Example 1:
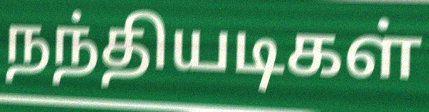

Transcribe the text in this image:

நந்தியடிகள்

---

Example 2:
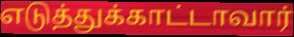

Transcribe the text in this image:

எடுத்துக்காட்டாவார்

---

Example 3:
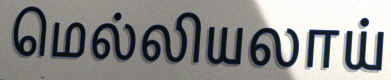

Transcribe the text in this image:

மெல்லியலாய்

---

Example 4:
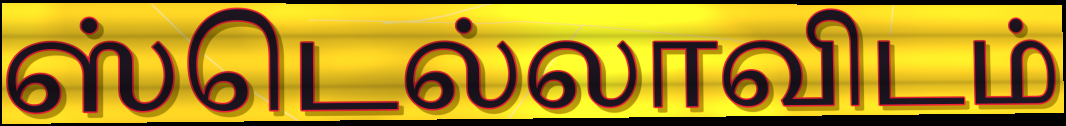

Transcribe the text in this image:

ஸ்டெல்லாவிடம்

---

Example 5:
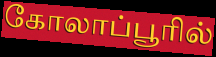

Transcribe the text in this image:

கோலாப்பூரில்